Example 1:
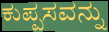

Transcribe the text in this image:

ಕುಪ್ಪಸವನ್ನು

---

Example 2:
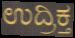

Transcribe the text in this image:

ಉದ್ರಿಕ್ತ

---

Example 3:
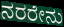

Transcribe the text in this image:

ನರರೇನು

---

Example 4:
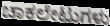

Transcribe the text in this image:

ಚಾಕಲೇಟುಗಳು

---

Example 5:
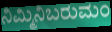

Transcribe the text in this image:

ನಿಮ್ಮಿನಿಬರುಮಂ